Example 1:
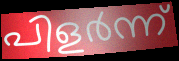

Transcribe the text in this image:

പിളർന്ന്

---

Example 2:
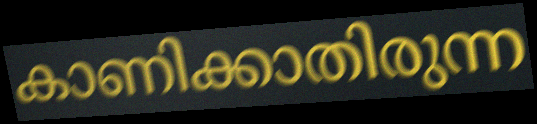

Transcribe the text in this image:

കാണിക്കാതിരുന്ന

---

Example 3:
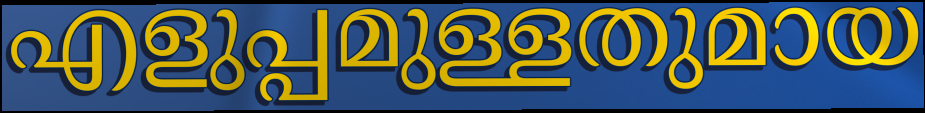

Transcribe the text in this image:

എളുപ്പമുള്ളതുമായ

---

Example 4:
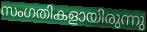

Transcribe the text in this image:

സംഗതികളായിരുന്നു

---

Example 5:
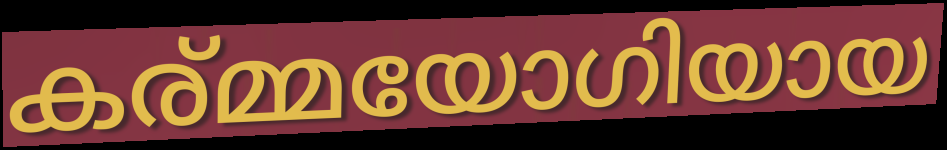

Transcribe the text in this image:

കര്മ്മയോഗിയായ